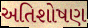
અતિશોષણ